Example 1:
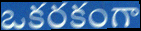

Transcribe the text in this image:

ఒకరకంగా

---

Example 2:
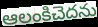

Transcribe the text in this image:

ఆలంకిచెదను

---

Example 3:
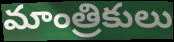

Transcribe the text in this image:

మాంత్రికులు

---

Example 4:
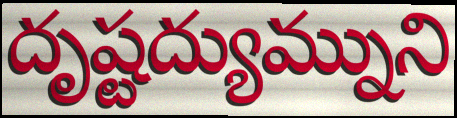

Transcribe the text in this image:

దృష్టద్యుమ్నుని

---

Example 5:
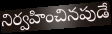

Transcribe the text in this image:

నిర్వహించినపుడే